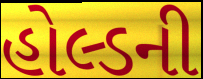
હોલ્ડની